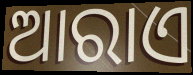
ଆରାଏ